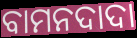
ବାମନଦାଦା